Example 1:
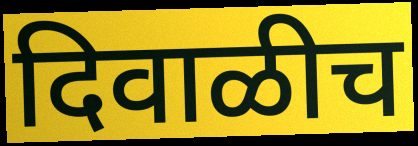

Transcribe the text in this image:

दिवाळीच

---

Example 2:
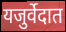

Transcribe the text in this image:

यजुर्वेदात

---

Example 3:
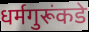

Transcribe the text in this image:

धर्मगुरूंकडे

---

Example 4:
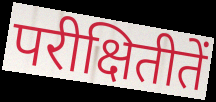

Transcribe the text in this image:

परीक्षितीतें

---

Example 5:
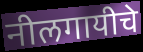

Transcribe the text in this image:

नीलगायीचे